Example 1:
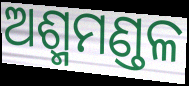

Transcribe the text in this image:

ଅଶ୍ମମଣ୍ଡଳ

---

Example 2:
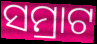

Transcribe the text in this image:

ସମ୍ରାଟ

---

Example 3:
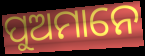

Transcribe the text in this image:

ପୁଅମାନେ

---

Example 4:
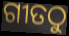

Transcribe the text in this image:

ଗୀତଠୁ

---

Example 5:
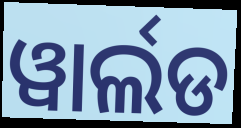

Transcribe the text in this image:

ୱାର୍ଲଡ